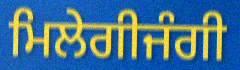
ਮਿਲੇਗੀਜੰਗੀ